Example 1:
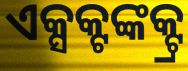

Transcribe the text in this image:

ଏକ୍ସକ୍ଟଙ୍କକ୍ଟ୍ର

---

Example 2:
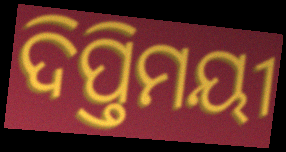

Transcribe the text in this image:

ଦିପ୍ତିମୟୀ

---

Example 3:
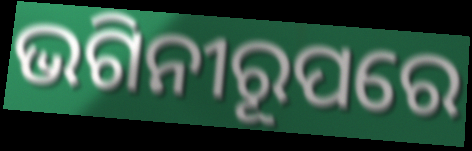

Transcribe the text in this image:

ଭଗିନୀରୂପରେ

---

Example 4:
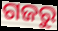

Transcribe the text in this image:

ଗଜରୁ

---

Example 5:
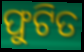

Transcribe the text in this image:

ଫୁଟିତ